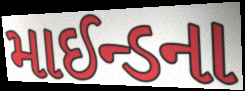
માઈન્ડના